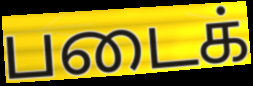
படைக்